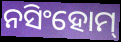
ନସିଂହୋମ୍